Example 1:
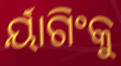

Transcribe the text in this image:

ର୍ୟାଗିଂକୁ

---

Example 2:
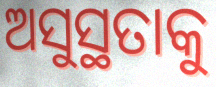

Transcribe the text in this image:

ଅସୁସ୍ଥତାକୁ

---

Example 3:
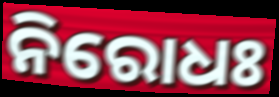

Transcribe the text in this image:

ନିରୋଧଃ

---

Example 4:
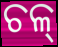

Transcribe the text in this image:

ଚଳ୍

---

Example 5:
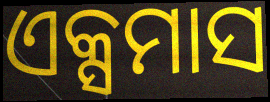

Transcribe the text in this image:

ଏକ୍ସମାସ